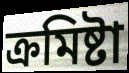
ক্ৰমিষ্টা